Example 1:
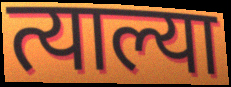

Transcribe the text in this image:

त्याल्या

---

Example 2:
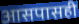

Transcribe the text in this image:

आसपासही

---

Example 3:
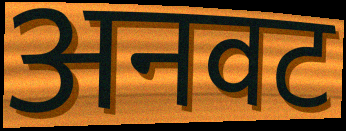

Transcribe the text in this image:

अनवट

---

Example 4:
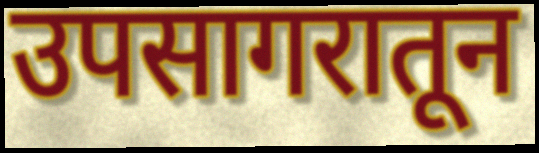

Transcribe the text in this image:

उपसागरातून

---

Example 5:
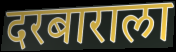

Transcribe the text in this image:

दरबाराला